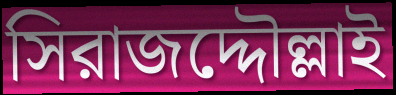
সিরাজদ্দৌল্লাই